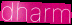
dharm